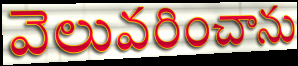
వెలువరించాను